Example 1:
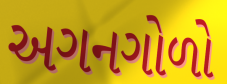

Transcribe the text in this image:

અગનગોળો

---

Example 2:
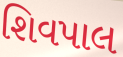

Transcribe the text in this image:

શિવપાલ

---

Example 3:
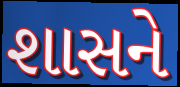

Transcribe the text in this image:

શાસને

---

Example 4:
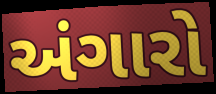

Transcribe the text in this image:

અંગારો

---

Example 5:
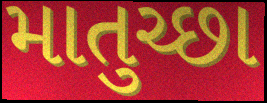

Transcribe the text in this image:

માતુચ્છા